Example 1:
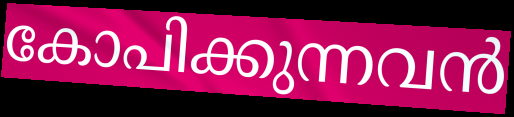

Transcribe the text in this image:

കോപിക്കുന്നവൻ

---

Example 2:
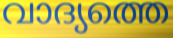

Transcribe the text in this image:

വാദ്യത്തെ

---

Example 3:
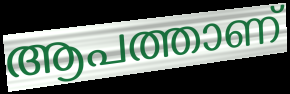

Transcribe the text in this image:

ആപത്താണ്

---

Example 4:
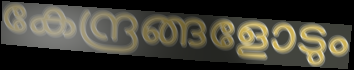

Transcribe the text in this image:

കേന്ദ്രങ്ങളോടും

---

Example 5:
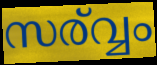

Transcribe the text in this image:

സര്വ്വം